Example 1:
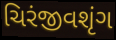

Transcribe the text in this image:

ચિરંજીવશૃંગ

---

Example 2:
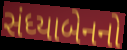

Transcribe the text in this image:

સંધ્યાબેનનો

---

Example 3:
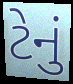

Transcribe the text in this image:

ટેનું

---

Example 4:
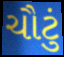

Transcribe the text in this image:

ચૌટું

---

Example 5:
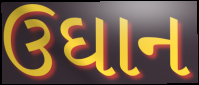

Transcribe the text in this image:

ઉઘાન